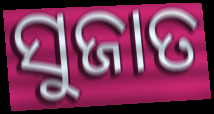
ସୁଜାତ